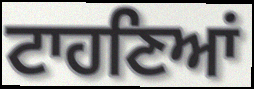
ਟਾਹਣਿਆਂ